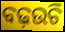
ବଢ଼ଉଚି